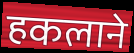
हकलाने